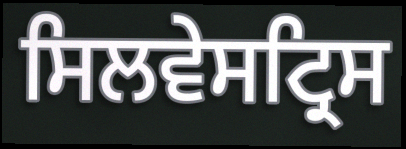
ਸਿਲਵੇਸਟ੍ਰਿਸ